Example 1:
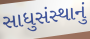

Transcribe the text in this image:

સાધુસંસ્થાનું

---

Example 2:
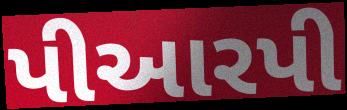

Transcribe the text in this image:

પીઆરપી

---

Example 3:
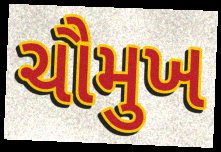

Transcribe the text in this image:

ચૌમુખ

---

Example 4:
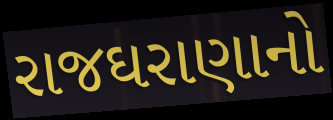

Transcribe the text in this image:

રાજઘરાણાનો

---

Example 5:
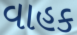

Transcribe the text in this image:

વાહક